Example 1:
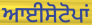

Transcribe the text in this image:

ਆਈਸੋਟੋਪਾਂ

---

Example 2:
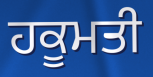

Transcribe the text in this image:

ਹਕੂਮਤੀ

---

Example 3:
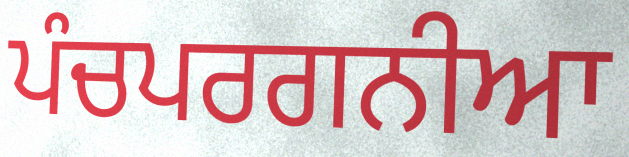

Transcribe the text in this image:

ਪੰਚਪਰਗਨੀਆ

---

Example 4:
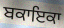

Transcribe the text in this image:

ਬਕਾਇਕਾ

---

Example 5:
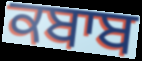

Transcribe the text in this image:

ਕਬਾਬ